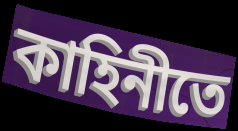
কাহিনীতে